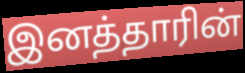
இனத்தாரின்